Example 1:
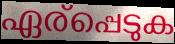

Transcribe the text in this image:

ഏര്പ്പെടുക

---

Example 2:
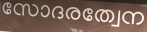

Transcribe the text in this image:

സോദരത്വേന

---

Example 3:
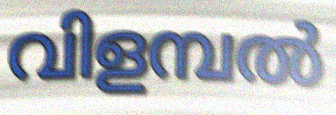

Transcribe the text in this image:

വിളമ്പൽ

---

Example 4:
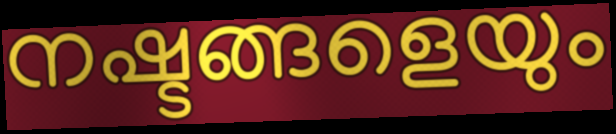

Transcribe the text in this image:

നഷ്ടങ്ങളെയും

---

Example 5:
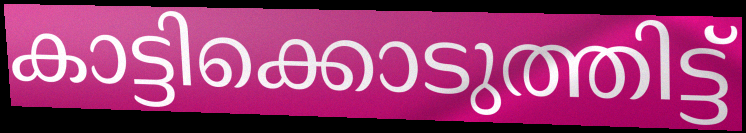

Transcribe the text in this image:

കാട്ടിക്കൊടുത്തിട്ട്